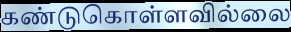
கண்டுகொள்ளவில்லை